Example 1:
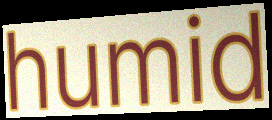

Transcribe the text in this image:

humid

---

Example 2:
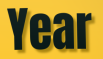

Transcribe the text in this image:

Year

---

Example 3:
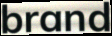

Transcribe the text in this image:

brand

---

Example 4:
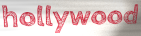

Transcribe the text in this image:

hollywood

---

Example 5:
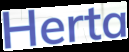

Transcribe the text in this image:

Herta